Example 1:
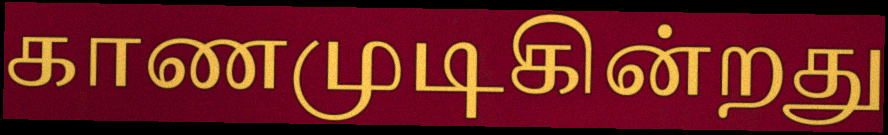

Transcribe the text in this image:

காணமுடிகின்றது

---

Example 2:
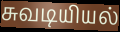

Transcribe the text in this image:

சுவடியியல்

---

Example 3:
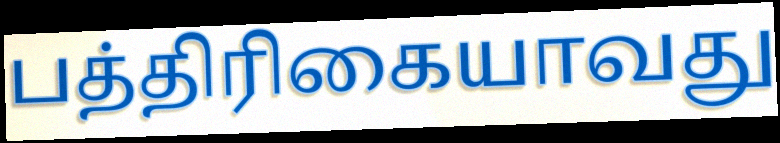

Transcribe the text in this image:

பத்திரிகையாவது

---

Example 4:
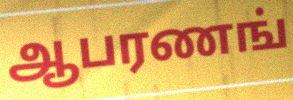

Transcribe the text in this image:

ஆபரணங்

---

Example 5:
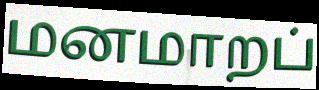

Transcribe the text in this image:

மனமாறப்